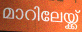
മാറിലേയ്ക്ക്